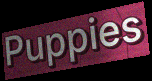
Puppies